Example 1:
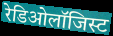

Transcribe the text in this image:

रेडिओलॉजिस्ट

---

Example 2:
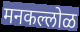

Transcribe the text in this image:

मनकल्लोळ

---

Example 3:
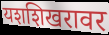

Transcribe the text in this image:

यशशिखरावर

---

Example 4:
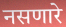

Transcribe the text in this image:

नसणारे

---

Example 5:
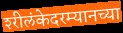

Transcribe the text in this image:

श्रीलंकेदरम्यानच्या